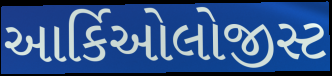
આર્કિઓલોજીસ્ટ